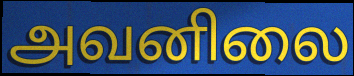
அவனிலை